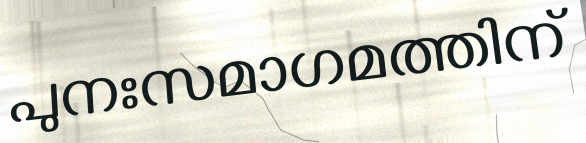
പുനഃസമാഗമത്തിന്